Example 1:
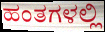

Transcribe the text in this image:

ಹಂತಗಳಲ್ಲಿ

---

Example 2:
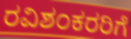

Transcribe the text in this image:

ರವಿಶಂಕರರಿಗೆ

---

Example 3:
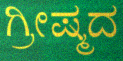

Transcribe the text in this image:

ಗ್ರೀಷ್ಮದ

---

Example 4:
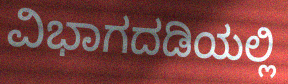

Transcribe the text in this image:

ವಿಭಾಗದಡಿಯಲ್ಲಿ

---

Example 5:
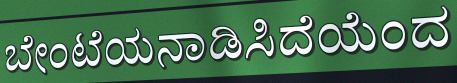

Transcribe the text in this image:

ಬೇಂಟೆಯನಾಡಿಸಿದೆಯೆಂದ